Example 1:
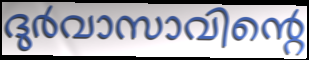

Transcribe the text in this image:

ദുർവാസാവിന്റെ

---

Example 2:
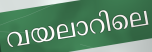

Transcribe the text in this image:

വയലാറിലെ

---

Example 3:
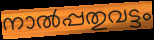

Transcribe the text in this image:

നാൽപ്പതുവട്ടം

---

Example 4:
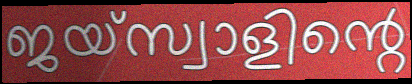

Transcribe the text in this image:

ജയ്സ്വാളിന്റെ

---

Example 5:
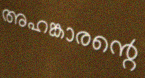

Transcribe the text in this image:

അഹങ്കാരന്റെ